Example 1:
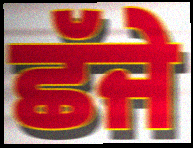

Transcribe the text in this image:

ਛੱਜੇ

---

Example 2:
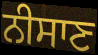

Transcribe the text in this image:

ਨੀਸਾਣ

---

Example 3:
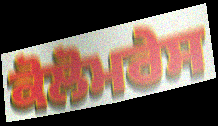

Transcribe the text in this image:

ਕੋਲੋਮਰੇਸ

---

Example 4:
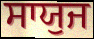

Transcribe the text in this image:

ਸਾਯੁਜ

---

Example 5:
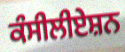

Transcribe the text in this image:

ਕੰਸੀਲੀਏਸ਼ਨ